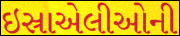
ઇસ્રાએલીઓની